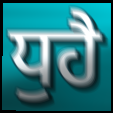
ਧੁਹੈ